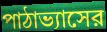
পাঠাভ্যাসের